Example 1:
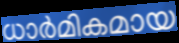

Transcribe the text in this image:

ധാർമികമായ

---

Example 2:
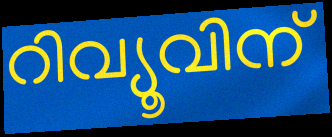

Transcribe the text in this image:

റിവ്യൂവിന്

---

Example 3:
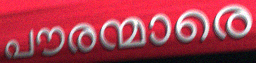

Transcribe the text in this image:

പൗരന്മാരെ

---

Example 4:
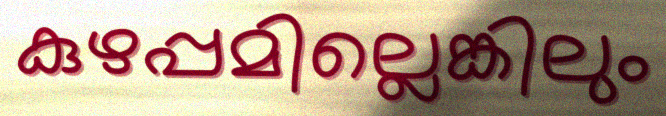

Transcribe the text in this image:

കുഴപ്പമില്ലെങ്കിലും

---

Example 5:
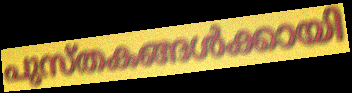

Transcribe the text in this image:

പുസ്തകങ്ങൾക്കായി